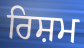
ਰਿਸ਼ਮ